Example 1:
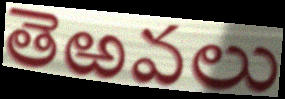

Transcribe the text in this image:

తెఱవలు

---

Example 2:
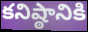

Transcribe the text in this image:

కనిష్ఠానికి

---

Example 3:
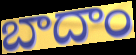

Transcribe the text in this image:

బాదాం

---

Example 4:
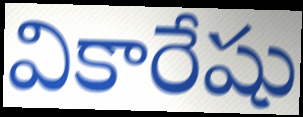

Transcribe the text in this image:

వికారేషు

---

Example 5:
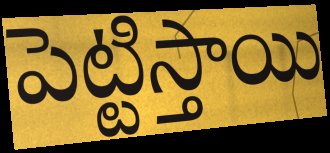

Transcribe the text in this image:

పెట్టిస్తాయి